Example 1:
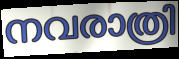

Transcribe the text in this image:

നവരാത്രി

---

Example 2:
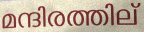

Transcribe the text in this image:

മന്ദിരത്തില്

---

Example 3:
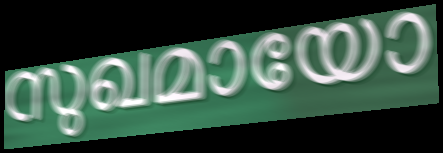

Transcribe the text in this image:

സുഖമായോ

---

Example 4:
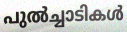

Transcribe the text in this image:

പുൽച്ചാടികൾ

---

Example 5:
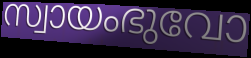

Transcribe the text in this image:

സ്വായംഭുവോ